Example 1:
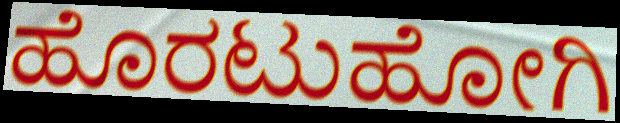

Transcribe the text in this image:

ಹೊರಟುಹೋಗಿ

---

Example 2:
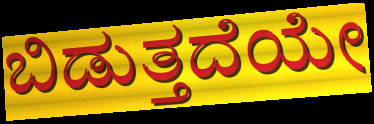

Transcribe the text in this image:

ಬಿಡುತ್ತದೆಯೇ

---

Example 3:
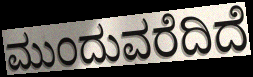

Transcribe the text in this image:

ಮುಂದುವರೆದಿದೆ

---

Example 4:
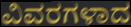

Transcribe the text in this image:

ವಿವರಗಳಾದ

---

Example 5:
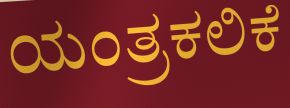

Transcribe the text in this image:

ಯಂತ್ರಕಲಿಕೆ